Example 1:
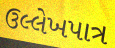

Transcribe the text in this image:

ઉલ્લેખપાત્ર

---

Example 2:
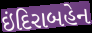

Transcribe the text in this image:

ઇંદિરાબહેન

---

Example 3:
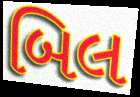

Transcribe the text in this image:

બિલ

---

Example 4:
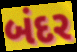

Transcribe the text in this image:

બંદર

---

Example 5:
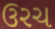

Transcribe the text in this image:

ઉરચ